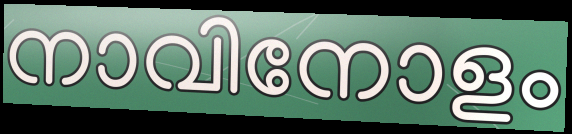
നാവിനോളം